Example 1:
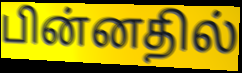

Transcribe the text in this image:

பின்னதில்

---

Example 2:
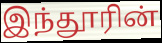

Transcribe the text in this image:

இந்தூரின்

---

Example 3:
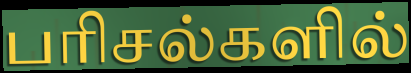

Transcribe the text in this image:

பரிசல்களில்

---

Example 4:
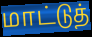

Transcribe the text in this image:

மாட்டுத்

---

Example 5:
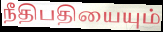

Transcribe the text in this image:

நீதிபதியையும்